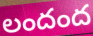
లందంద